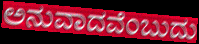
ಅನುವಾದವೆಂಬುದು